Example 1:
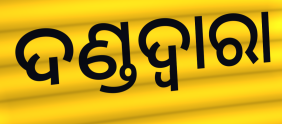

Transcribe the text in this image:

ଦଣ୍ଡଦ୍ୱାରା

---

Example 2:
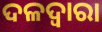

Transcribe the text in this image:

ଦଳଦ୍ୱାରା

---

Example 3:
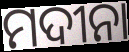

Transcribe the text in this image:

ମଦୀନା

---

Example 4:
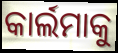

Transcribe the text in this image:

କାର୍ଲମାକୁ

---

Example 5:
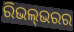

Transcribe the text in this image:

ରିଭଲ୍‍ଭରର